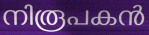
നിരൂപകൻ